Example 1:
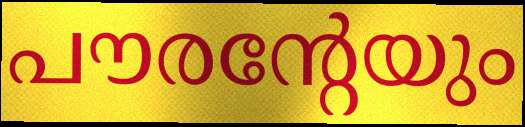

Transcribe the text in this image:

പൗരന്റേയും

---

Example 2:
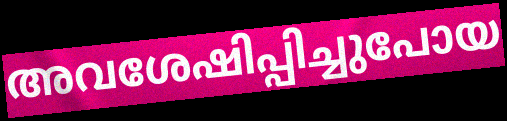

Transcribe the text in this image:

അവശേഷിപ്പിച്ചുപോയ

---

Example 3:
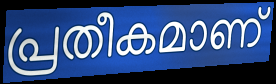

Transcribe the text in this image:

പ്രതീകമാണ്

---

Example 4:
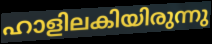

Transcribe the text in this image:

ഹാളിലകിയിരുന്നു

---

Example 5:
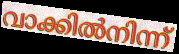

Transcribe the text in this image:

വാക്കിൽനിന്ന്